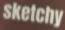
sketchy